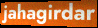
jahagirdar